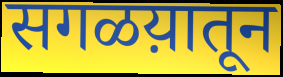
सगळय़ातून